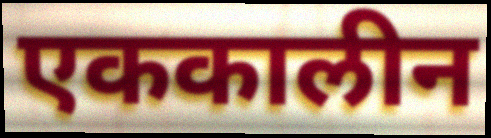
एककालीन